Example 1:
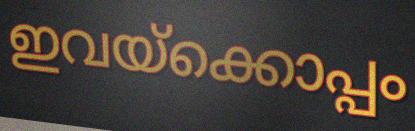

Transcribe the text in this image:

ഇവയ്ക്കൊപ്പം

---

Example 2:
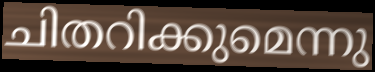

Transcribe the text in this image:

ചിതറിക്കുമെന്നു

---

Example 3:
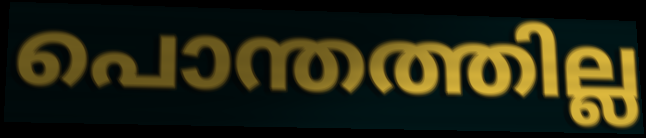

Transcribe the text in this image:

പൊന്തത്തില്ല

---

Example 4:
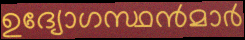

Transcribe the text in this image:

ഉദ്യോഗസ്ഥൻമാർ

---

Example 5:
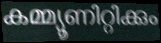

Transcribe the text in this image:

കമ്മ്യൂണിറ്റിക്കും